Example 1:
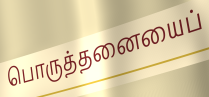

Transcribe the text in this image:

பொருத்தனையைப்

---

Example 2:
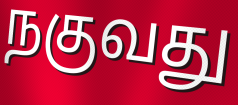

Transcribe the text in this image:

நகுவது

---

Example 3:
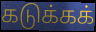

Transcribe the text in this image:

கடுக்கக்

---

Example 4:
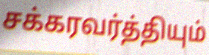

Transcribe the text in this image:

சக்கரவர்த்தியும்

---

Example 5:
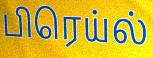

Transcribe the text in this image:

பிரெய்ல்